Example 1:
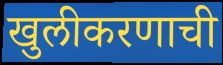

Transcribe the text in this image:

खुलीकरणाची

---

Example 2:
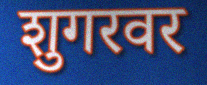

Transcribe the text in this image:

शुगरवर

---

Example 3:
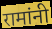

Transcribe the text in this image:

रामांनी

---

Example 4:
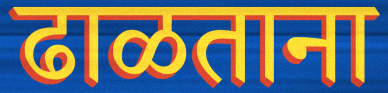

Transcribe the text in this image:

ढाळताना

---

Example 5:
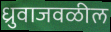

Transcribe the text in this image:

ध्रुवाजवळील